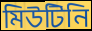
মিউটিনি